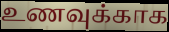
உணவுக்காக